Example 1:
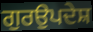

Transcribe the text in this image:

ਗੁਰਉਪਦੇਸ਼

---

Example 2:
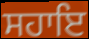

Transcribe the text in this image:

ਸਹਾਇ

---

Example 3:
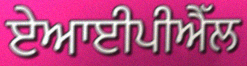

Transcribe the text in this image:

ਏਆਈਪੀਐੱਲ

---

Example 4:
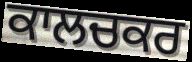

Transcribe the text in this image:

ਕਾਲਚਕਰ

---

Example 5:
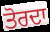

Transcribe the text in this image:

ਤੋਰਦਾ